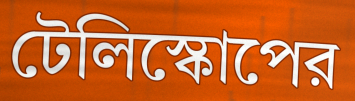
টেলিস্কোপের